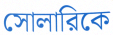
সোলারিকে